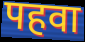
पहवा